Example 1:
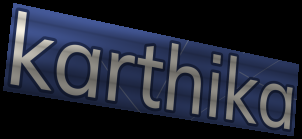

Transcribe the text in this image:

karthika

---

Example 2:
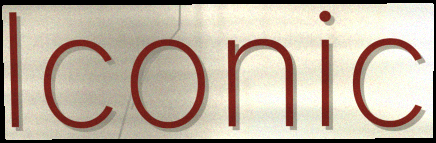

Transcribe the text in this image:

Iconic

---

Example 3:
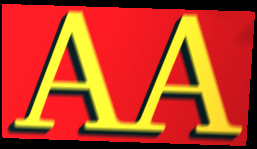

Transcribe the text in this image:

AA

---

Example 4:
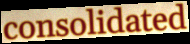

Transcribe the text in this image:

consolidated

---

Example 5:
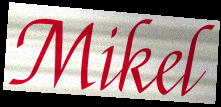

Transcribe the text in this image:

Mikel